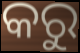
କରୁ